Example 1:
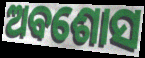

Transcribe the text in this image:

ଅବଶୋସ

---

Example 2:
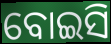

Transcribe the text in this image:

ବୋଇସି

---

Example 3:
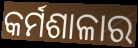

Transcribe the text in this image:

କର୍ମଶାଳାର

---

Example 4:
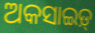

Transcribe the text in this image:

ଅକସାଇଡ଼୍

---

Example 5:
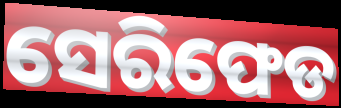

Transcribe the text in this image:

ସେରିଫେଡ